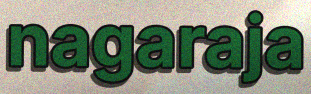
nagaraja